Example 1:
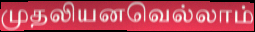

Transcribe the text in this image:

முதலியனவெல்லாம்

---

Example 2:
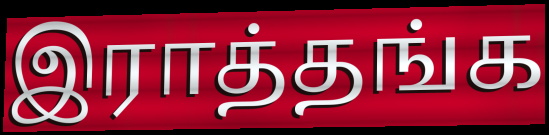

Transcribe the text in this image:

இராத்தங்க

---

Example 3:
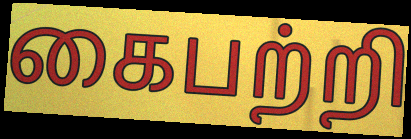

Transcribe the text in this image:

கைபற்றி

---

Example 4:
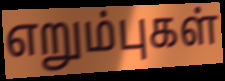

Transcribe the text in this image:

எறும்புகள்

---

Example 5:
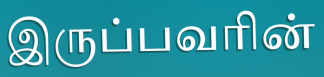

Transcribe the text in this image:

இருப்பவரின்